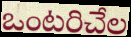
ఒంటరిచేల